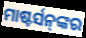
ମାଷ୍ଟର୍ସନ୍‌ଙ୍କର